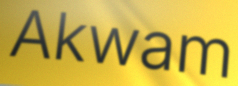
Akwam